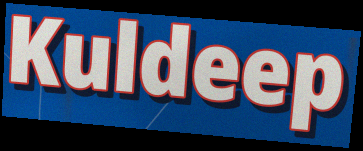
Kuldeep